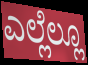
ಎಲ್ಲೆಲ್ಲೂ